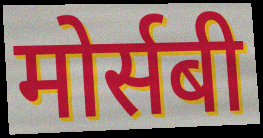
मोर्सबी